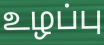
உழப்பு